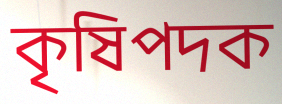
কৃষিপদক